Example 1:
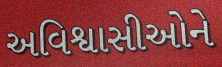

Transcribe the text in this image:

અવિશ્વાસીઓને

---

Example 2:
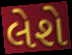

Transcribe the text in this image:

લેશે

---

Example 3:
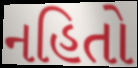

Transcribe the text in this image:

નહિતો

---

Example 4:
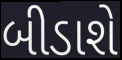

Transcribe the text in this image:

બીડાશે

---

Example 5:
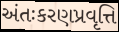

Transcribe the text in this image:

અંતઃકરણપ્રવૃત્તિ